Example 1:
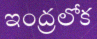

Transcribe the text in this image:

ఇంద్రలోక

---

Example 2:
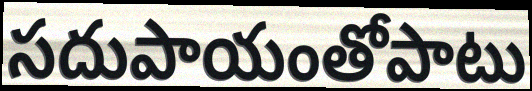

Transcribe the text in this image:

సదుపాయంతోపాటు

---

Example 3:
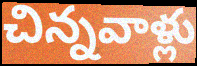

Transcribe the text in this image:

చిన్నవాళ్లు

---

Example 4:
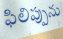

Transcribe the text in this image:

ఫిలిప్పును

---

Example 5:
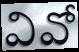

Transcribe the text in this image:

వివో